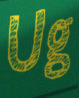
Ug